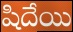
షిదేయి